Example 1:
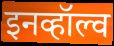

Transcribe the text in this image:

इनव्हॉल्व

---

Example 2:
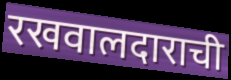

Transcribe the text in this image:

रखवालदाराची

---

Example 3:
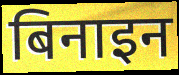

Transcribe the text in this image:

बिनाइन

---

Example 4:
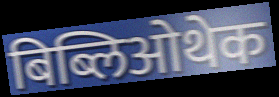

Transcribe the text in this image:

बिब्लिओथेक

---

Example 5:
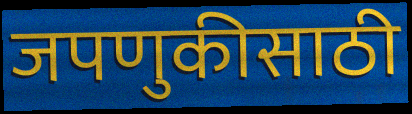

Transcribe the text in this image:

जपणुकीसाठी